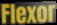
Flexor